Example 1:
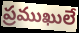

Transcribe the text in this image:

ప్రముఖులే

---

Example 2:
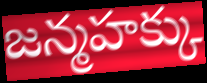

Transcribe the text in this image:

జన్మహక్కు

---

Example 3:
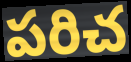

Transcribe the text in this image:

పరిచ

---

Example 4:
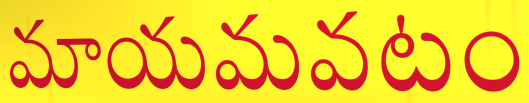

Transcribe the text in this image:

మాయమవటం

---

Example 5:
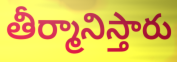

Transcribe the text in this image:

తీర్మానిస్తారు